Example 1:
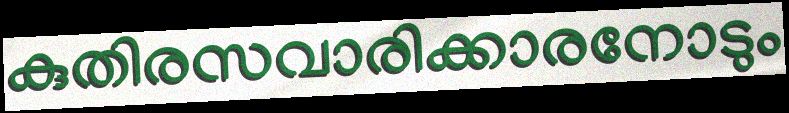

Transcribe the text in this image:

കുതിരസവാരിക്കാരനോടും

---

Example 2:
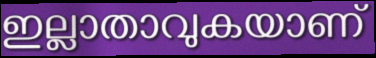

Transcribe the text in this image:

ഇല്ലാതാവുകയാണ്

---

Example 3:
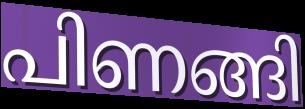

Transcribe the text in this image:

പിണങ്ങി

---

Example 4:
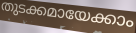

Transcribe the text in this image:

തുടക്കമായേക്കാം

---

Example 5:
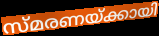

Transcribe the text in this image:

സ്മരണയ്ക്കായി